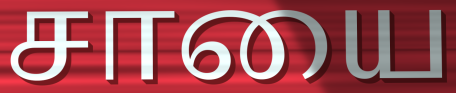
சாயை